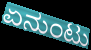
ಏನುಂಟು